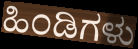
ಹಿಂಡಿಗಳು